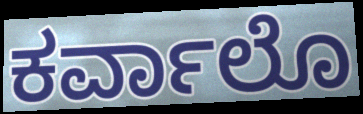
ಕರ್ವಾಲೊ